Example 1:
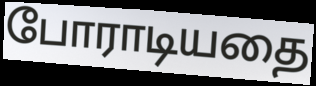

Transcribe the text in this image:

போராடியதை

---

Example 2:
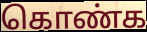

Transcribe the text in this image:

கொண்க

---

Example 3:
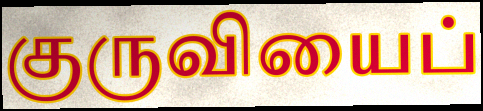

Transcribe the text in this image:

குருவியைப்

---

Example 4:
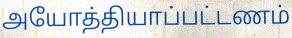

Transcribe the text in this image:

அயோத்தியாப்பட்டணம்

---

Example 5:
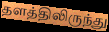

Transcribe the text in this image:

தளத்திலிருந்து